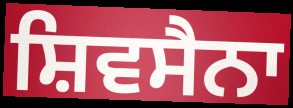
ਸ਼ਿਵਸੈਨਾ